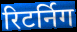
रिटर्निग